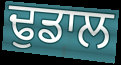
ਢੁਡਾਲ